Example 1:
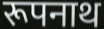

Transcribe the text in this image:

रूपनाथ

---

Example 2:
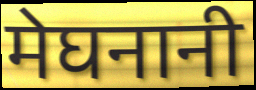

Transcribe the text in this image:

मेघनानी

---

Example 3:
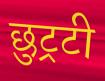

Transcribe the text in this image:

छुट्रटी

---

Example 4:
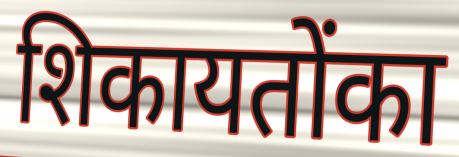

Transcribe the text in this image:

शिकायतोंका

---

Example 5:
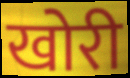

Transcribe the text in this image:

खोरी